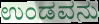
ಉಂಡವನು